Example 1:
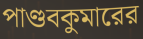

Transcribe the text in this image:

পাণ্ডবকুমারের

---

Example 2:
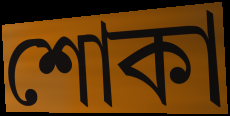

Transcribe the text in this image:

শোকা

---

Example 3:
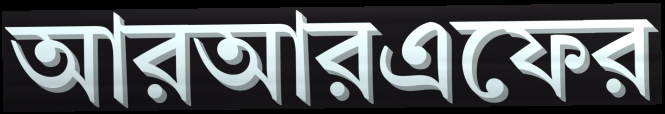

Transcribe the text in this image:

আরআরএফের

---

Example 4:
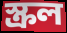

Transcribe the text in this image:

স্ক্রল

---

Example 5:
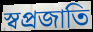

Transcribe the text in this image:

স্বপ্রজাতি